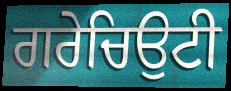
ਗਰੇਚਿਉਟੀ